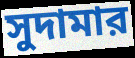
সুদামার